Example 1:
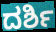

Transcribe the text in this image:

ದರ್ಶಿ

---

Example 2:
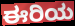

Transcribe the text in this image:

ಈರಿಯ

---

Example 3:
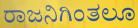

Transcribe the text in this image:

ರಾಜನಿಗಿಂತಲೂ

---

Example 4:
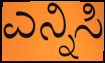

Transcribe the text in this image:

ಎನ್ನಿಸಿ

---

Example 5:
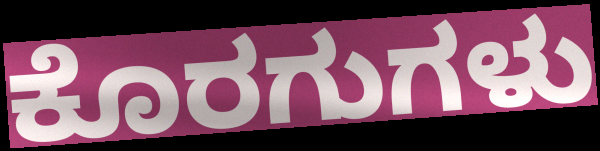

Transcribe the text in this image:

ಕೊರಗುಗಳು